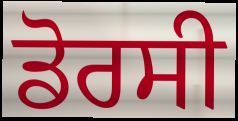
ਡੋਰਸੀ